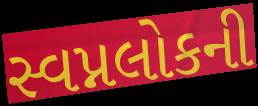
સ્વપ્નલોકની